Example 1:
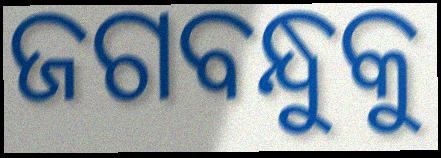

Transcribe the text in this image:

ଜଗବନ୍ଧୁକୁ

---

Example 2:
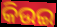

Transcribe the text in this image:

କିଉଇ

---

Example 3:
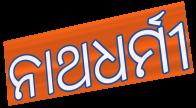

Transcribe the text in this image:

ନାଥଧର୍ମୀ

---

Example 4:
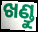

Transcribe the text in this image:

ଖଣ୍ଡୁ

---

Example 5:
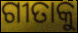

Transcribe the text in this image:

ଗୀତାକୁ